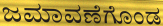
ಜಮಾವಣೆಗೊಂಡ